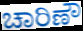
ಚಾರಿಣೌ